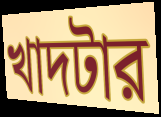
খাদটার